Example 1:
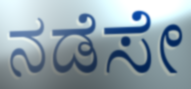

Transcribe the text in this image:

ನಡೆಸೇ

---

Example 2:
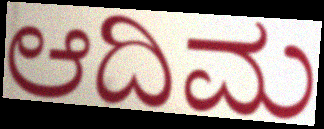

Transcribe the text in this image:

ಆದಿಮ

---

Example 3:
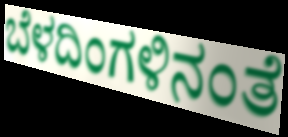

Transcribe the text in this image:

ಬೆಳದಿಂಗಳಿನಂತೆ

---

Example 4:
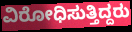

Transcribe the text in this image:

ವಿರೋಧಿಸುತ್ತಿದ್ದರು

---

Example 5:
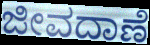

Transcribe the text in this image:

ಜೀವದಾಣೆ